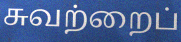
சுவற்றைப்